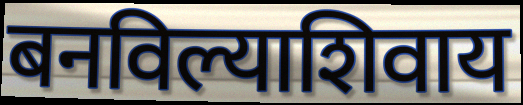
बनविल्याशिवाय